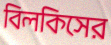
বিলকিসের